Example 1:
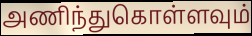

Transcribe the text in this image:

அணிந்துகொள்ளவும்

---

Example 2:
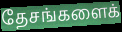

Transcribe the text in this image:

தேசங்களைக்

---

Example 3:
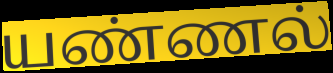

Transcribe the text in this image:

யண்ணல்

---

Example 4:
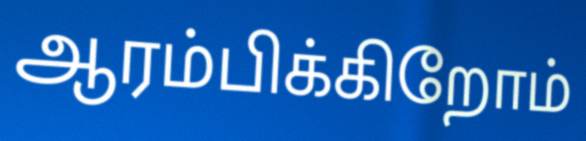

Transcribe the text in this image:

ஆரம்பிக்கிறோம்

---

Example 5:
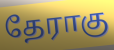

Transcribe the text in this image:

தேராகு